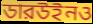
ডারউইনও